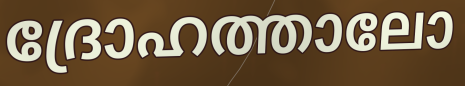
ദ്രോഹത്താലോ